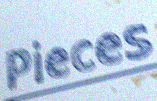
Pieces